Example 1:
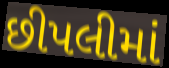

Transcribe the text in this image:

છીપલીમાં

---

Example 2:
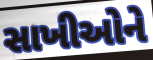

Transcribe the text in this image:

સાખીઓને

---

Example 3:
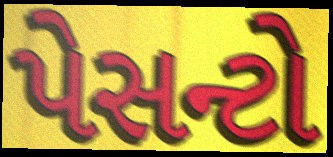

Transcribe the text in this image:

પેસન્ટો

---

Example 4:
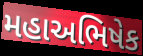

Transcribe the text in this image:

મહાઅભિષેક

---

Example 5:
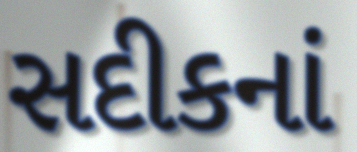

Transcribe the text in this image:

સદીકનાં